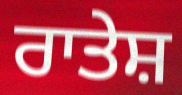
ਰਾਤੇਸ਼